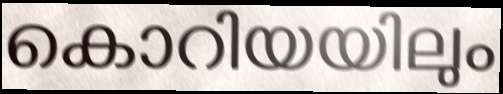
കൊറിയയിലും